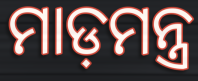
ମାଡ଼ମନ୍ତ୍ର